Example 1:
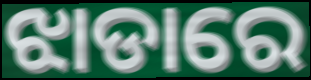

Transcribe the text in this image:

ଝାଡାରେ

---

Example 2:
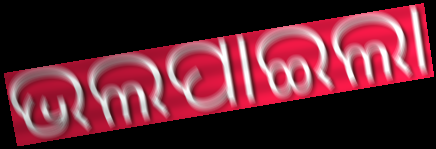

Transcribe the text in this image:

ଭଲପାଇଲା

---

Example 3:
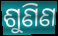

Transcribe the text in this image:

ଶୁଣିଣ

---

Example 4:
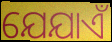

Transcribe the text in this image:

ଯେଯାଏଁ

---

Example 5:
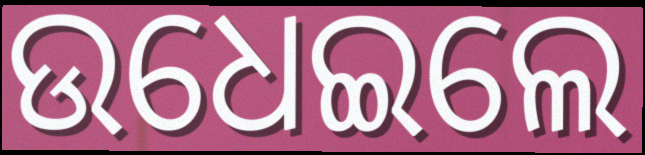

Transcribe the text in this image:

ଉଧେଇଲେ